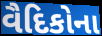
વૈદિકોના